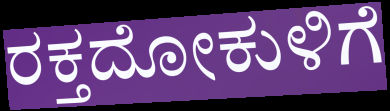
ರಕ್ತದೋಕುಳಿಗೆ